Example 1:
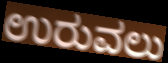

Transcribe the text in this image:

ಉರುವಲು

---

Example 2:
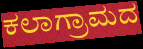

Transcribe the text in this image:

ಕಲಾಗ್ರಾಮದ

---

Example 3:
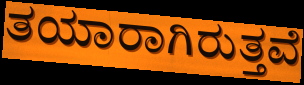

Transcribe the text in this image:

ತಯಾರಾಗಿರುತ್ತವೆ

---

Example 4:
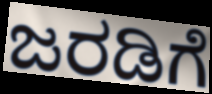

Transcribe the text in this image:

ಜರಡಿಗೆ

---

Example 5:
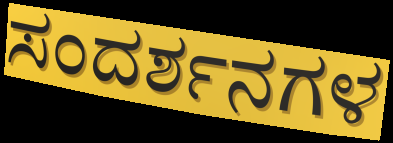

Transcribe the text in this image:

ಸಂದರ್ಶನಗಳ